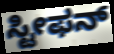
ಸ್ಟೀಫನ್